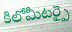
కిలోమీటర్పై